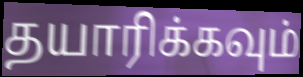
தயாரிக்கவும்